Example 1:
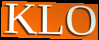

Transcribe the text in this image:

KLO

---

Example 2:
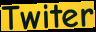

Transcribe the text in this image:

Twiter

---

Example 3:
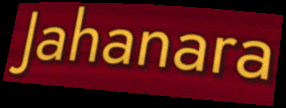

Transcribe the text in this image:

Jahanara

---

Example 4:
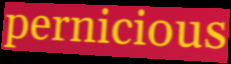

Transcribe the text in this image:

pernicious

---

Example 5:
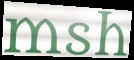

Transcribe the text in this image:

msh